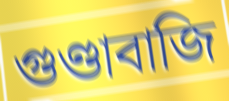
গুণ্ডাবাজি